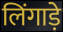
लिंगाड़े